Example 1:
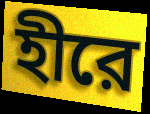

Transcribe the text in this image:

হীরে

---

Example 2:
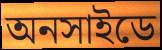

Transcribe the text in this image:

অনসাইডে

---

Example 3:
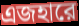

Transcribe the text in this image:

এজহারে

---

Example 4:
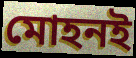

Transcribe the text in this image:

মোহনই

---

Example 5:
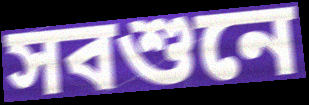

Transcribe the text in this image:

সবশুনে